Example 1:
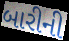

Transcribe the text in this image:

બારીની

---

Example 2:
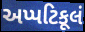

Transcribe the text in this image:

અપ્પટિકૂલં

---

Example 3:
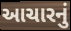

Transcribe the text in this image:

આચારનું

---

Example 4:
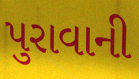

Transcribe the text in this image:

પુરાવાની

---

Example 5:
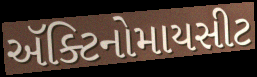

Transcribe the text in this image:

ઍક્ટિનોમાયસીટ